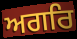
ਅਗਰਿ